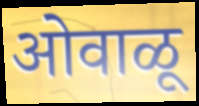
ओवाळू